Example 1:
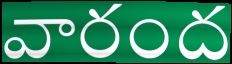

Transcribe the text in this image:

వారంద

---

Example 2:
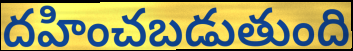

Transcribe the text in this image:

దహించబడుతుంది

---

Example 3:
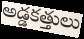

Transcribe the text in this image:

అడ్డకత్తులు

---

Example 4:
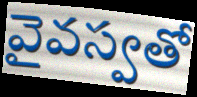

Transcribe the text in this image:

వైవస్వతో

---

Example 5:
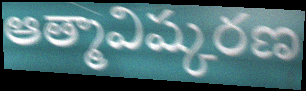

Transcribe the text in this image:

ఆత్మావిష్కరణ